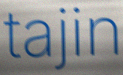
tajin